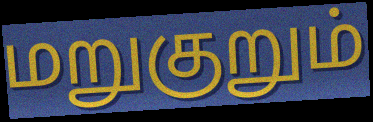
மறுகுறும்